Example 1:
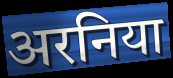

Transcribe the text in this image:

अरनिया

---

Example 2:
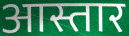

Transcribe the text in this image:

आस्तार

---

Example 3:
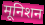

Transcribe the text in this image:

मूनिशन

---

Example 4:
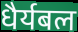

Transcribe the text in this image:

धैर्यबल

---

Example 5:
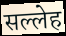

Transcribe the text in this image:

सल्लेह